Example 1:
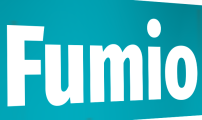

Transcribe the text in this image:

Fumio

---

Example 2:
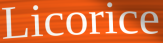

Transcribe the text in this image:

Licorice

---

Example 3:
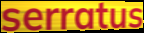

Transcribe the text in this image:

serratus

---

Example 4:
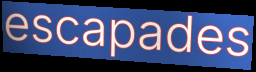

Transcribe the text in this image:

escapades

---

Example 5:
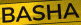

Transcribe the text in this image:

BASHA